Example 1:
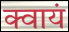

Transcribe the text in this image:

क्वायं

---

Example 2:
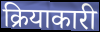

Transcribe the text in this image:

क्रियाकारी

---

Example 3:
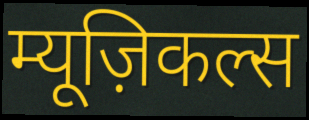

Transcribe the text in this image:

म्यूज़िकल्स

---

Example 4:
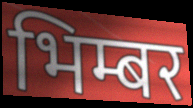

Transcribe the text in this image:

भिम्बर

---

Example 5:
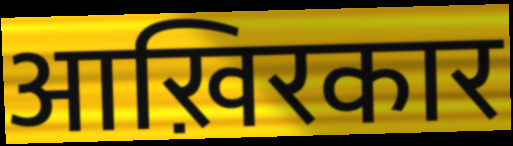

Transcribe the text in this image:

आख़िरकार